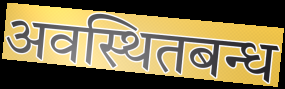
अवस्थितबन्ध